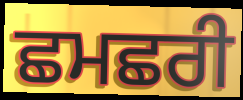
ਛਮਛਰੀ